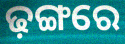
ଢ଼ଙ୍ଗରେ